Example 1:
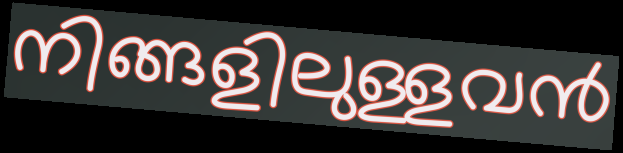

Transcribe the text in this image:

നിങ്ങളിലുള്ളവൻ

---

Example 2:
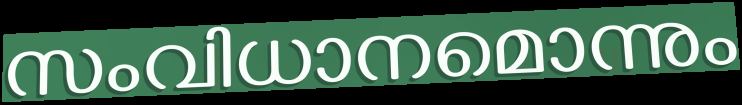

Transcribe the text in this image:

സംവിധാനമൊന്നും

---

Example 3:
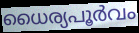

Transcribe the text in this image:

ധൈര്യപൂർവം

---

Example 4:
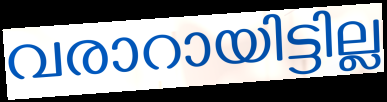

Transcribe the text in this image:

വരാറായിട്ടില്ല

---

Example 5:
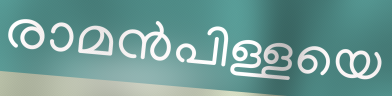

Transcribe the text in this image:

രാമൻപിള്ളയെ